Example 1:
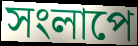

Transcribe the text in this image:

সংলাপে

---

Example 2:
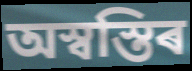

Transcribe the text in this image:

অস্বস্তিৰ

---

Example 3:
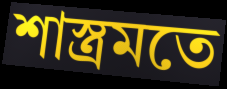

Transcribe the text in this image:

শাস্ত্ৰমতে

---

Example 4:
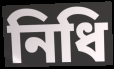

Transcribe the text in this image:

নিধি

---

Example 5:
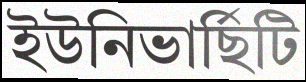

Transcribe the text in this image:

ইউনিভাৰ্ছিটি